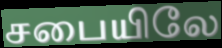
சபையிலே